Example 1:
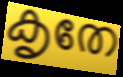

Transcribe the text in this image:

കൃതേ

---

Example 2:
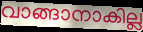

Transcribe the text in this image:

വാങ്ങാനാകില്ല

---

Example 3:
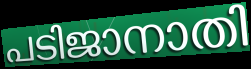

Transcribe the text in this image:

പടിജാനാതി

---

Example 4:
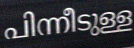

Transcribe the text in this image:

പിന്നീടുള്ള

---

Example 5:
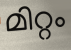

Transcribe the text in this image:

മിറ്റം